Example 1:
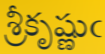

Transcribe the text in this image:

శ్రీకృష్ణుఁ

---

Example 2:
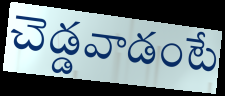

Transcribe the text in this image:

చెడ్డవాడంటే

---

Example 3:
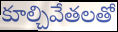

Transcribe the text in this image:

కూల్చివేతలతో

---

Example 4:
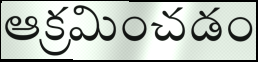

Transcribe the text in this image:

ఆక్రమించడం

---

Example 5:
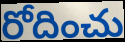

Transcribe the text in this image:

రోదించు